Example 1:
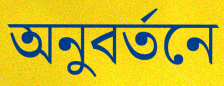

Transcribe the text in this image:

অনুবর্তনে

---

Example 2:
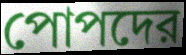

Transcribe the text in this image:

পোপদের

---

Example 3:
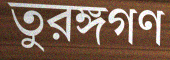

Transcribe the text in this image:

তুরঙ্গগণ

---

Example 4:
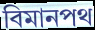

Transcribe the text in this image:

বিমানপথ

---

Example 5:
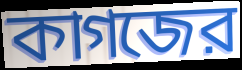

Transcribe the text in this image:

কাগজের